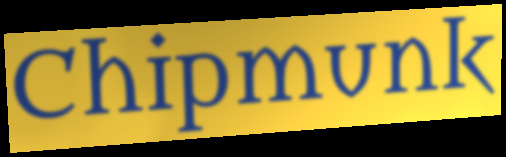
Chipmunk